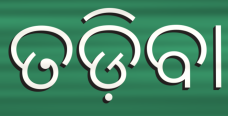
ତଡ଼ିବା